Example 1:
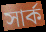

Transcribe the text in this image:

সার্ক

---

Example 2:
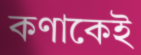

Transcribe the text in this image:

কণাকেই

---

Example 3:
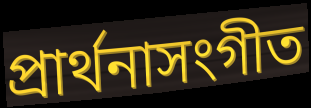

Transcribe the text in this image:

প্রার্থনাসংগীত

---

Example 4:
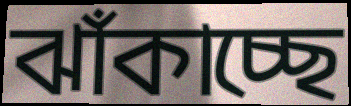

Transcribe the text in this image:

ঝাঁকাচ্ছে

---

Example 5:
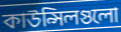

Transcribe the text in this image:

কাউন্সিলগুলো